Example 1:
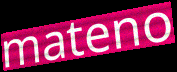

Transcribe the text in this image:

mateno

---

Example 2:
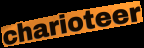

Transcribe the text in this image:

charioteer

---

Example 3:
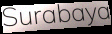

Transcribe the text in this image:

Surabaya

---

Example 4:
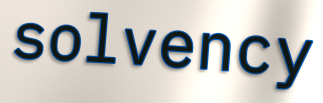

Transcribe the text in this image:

solvency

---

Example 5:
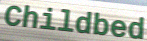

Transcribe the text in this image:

Childbed